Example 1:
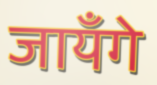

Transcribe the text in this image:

जायँगे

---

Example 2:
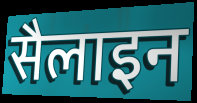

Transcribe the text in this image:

सैलाइन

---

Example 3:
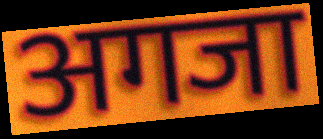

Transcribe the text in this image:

अगजा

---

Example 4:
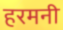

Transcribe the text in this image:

हरमनी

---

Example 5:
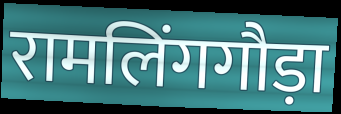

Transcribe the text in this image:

रामलिंगगौड़ा